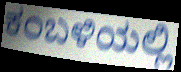
ಕಂಬಳಿಯಲ್ಲಿ